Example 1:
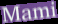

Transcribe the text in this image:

Mami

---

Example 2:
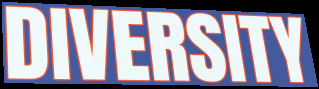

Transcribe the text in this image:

DIVERSITY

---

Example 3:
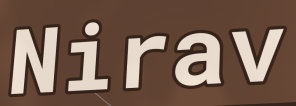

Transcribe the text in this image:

Nirav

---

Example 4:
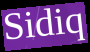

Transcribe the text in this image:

Sidiq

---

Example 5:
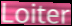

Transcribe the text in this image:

Loiter